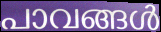
പാവങ്ങൾ